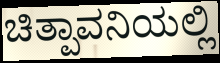
ಚಿತ್ಪಾವನಿಯಲ್ಲಿ